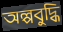
অল্পবুদ্ধি